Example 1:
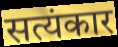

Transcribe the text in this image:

सत्यंकार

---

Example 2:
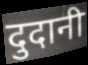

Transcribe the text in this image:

दुदानी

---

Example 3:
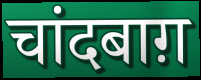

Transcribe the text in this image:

चांदबाग़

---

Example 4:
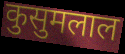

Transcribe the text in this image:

कुसुमलाल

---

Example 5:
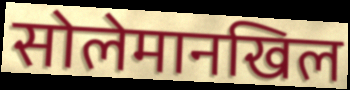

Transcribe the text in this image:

सोलेमानखिल